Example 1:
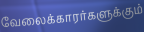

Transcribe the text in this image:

வேலைக்காரர்களுக்கும்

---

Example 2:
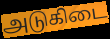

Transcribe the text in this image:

அடுகிடை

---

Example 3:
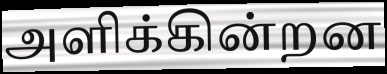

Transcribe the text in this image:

அளிக்கின்றன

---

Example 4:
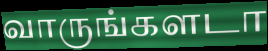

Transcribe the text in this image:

வாருங்களடா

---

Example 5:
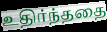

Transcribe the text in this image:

உதிர்ந்ததை